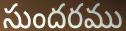
సుందరము